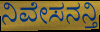
ನಿವೇಸನನ್ತಿ